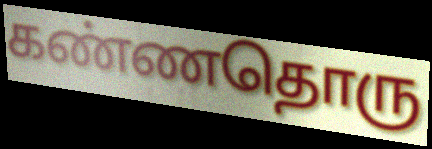
கண்ணதொரு